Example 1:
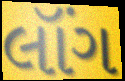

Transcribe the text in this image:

લૉંગ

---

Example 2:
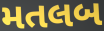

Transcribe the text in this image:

મતલબ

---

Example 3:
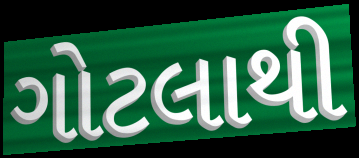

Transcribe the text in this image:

ગોટલાથી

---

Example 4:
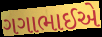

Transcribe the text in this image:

ગગાભાઈએ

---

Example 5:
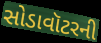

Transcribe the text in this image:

સોડાવૉટરની